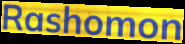
Rashomon